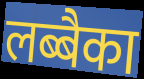
लब्बैका